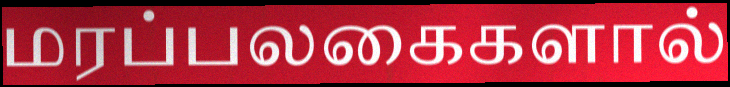
மரப்பலகைகளால்